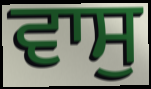
ਵਾਸੁ